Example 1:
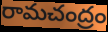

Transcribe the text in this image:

రామచంద్రం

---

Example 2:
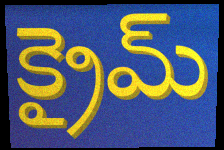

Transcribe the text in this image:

క్రైమ్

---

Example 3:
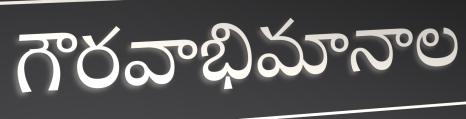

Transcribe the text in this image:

గౌరవాభిమానాల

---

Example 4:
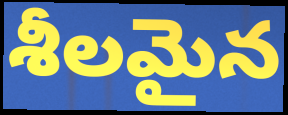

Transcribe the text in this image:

శీలమైన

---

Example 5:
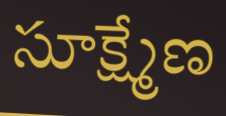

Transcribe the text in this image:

సూక్ష్మేణ